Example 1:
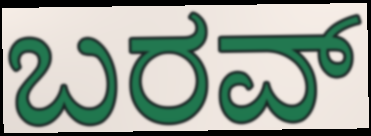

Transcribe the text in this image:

ಬರವ್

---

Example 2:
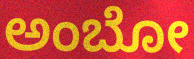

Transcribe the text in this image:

ಅಂಬೋ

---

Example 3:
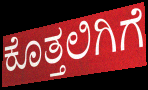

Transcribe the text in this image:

ಕೊತ್ತಲಿಗಿಗೆ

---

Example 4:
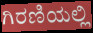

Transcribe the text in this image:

ಗಿರಣಿಯಲ್ಲಿ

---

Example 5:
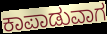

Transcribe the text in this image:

ಕಾಪಾಡುವಾಗ